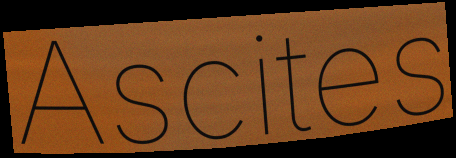
Ascites